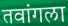
तवांगला